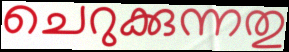
ചെറുക്കുന്നതു